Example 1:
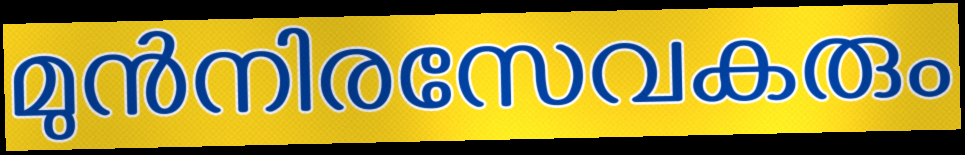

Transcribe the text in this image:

മുൻനിരസേവകരും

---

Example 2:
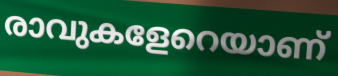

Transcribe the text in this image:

രാവുകളേറെയാണ്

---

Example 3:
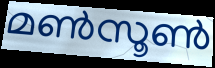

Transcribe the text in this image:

മൺസൂൺ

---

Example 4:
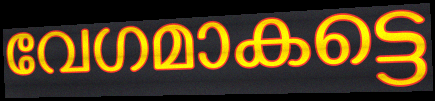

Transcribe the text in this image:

വേഗമാകട്ടെ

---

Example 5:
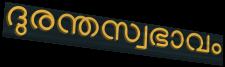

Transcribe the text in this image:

ദുരന്തസ്വഭാവം